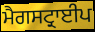
ਮੈਗਸਟ੍ਰਾਈਪ